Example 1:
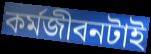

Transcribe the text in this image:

কর্মজীবনটাই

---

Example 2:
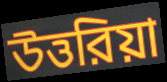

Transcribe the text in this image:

উত্তরিয়া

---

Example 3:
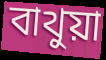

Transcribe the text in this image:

বাথুয়া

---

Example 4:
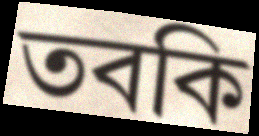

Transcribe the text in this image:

তবকি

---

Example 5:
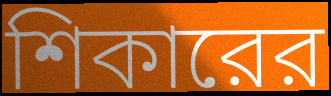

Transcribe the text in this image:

শিকারের